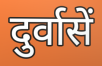
दुर्वासें